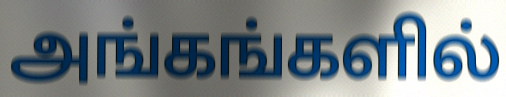
அங்கங்களில்